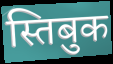
स्तिबुक